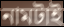
নামটাই